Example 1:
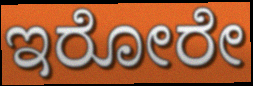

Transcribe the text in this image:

ಇರೋರೇ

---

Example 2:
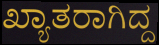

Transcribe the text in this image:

ಖ್ಯಾತರಾಗಿದ್ದ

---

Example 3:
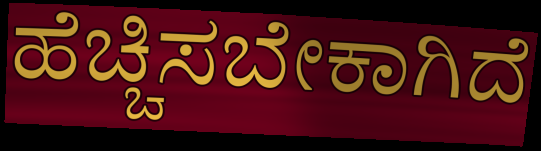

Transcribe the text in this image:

ಹೆಚ್ಚಿಸಬೇಕಾಗಿದೆ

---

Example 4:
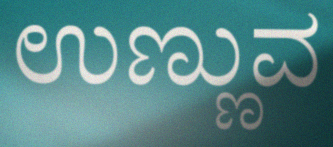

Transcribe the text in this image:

ಉಣ್ಣುವ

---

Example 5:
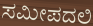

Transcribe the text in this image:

ಸಮೀಪದಲಿ